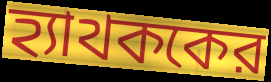
হ্যাথককের